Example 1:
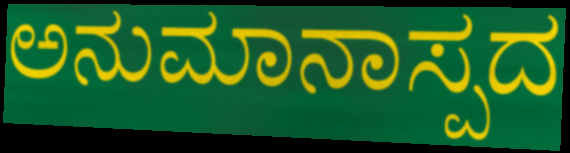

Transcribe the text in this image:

ಅನುಮಾನಾಸ್ಪದ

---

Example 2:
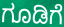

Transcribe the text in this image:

ಗೂಡಿಗೆ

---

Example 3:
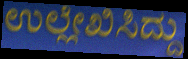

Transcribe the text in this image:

ಉಲ್ಲೇಖಿಸಿದ್ದು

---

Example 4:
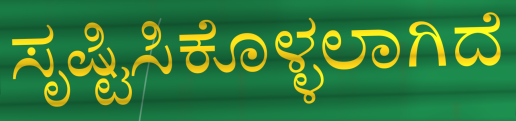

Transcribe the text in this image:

ಸೃಷ್ಟಿಸಿಕೊಳ್ಳಲಾಗಿದೆ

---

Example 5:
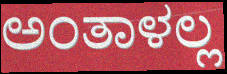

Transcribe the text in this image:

ಅಂತಾಳಲ್ಲ